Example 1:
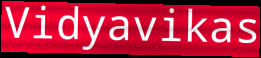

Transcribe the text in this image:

Vidyavikas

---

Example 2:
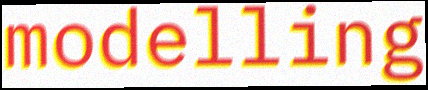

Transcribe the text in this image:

modelling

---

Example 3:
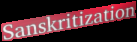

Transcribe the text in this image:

Sanskritization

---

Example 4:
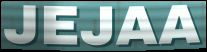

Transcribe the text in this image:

JEJAA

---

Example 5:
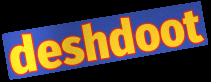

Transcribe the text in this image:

deshdoot